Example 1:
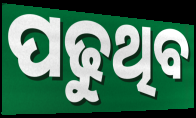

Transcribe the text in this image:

ପଢୁଥିବ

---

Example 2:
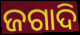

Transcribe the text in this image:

ଜଗାଦି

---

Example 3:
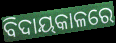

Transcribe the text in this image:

ବିଦାୟକାଳରେ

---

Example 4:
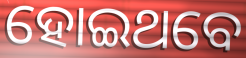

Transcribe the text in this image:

ହୋଇଥବେ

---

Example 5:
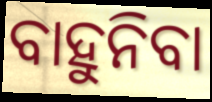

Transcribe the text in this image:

ବାହୁନିବା